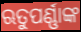
ଋତୁପର୍ଣ୍ଣାଙ୍କ